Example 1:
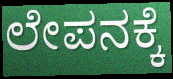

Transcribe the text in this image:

ಲೇಪನಕ್ಕೆ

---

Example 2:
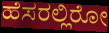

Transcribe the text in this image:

ಹೆಸರಲ್ಲಿರೋ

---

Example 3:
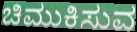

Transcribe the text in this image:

ಚಿಮುಕಿಸುವ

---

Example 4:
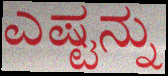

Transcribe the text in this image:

ಎಷ್ಟನ್ನು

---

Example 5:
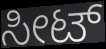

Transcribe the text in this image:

ಸೀಟ್